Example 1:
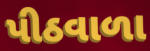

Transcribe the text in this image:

પીઠવાળા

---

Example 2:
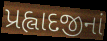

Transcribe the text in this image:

પ્રહ્લાદજીનાં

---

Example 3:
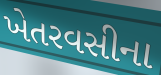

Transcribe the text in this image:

ખેતરવસીના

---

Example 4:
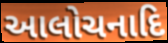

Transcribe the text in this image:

આલોચનાદિ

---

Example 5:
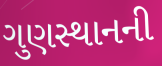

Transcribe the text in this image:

ગુણસ્થાનની